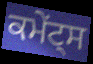
ਕਮੇਂਟ੍ਸ